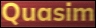
Quasim